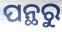
ପନ୍ଥରୁ